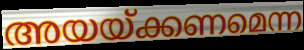
അയയ്ക്കണമെന്ന